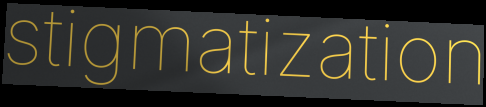
stigmatization